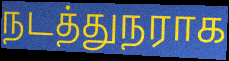
நடத்துநராக